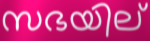
സഭയില്